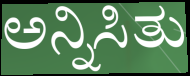
ಅನ್ನಿಸಿತು